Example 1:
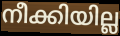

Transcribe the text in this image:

നീക്കിയില്ല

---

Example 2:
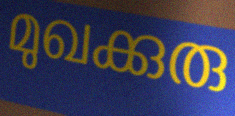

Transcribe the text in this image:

മുഖക്കുരു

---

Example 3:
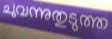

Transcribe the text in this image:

ചുവന്നുതുടുത്ത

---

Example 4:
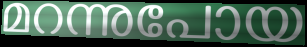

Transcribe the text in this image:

മറന്നുപോയ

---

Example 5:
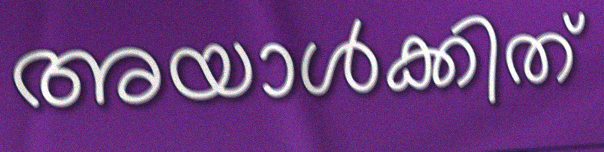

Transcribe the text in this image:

അയാൾക്കിത്